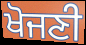
ਖੋਜਣੀ